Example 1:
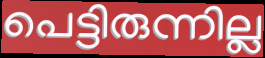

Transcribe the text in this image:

പെട്ടിരുന്നില്ല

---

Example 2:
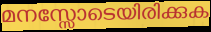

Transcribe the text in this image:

മനസ്സോടെയിരിക്കുക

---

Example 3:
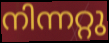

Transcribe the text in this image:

നിന്നറ്റു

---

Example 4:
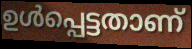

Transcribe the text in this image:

ഉൾപ്പെട്ടതാണ്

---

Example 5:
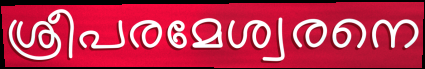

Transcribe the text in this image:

ശ്രീപരമേശ്വരനെ